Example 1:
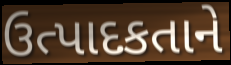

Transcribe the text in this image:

ઉત્પાદકતાને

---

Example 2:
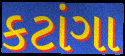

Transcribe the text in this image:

કટાંગા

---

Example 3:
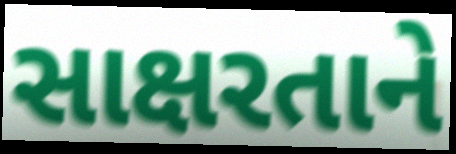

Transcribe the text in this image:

સાક્ષરતાને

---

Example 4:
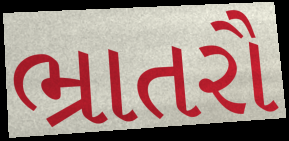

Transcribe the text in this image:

ભ્રાતરૌ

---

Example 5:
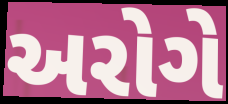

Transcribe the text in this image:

અરોગે